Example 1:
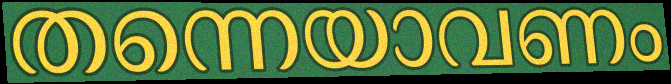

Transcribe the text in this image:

തന്നെയാവണം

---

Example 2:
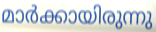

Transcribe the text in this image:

മാർക്കായിരുന്നു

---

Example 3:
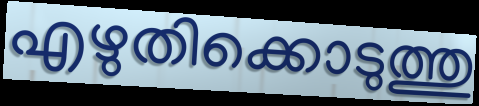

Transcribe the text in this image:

എഴുതിക്കൊടുത്തു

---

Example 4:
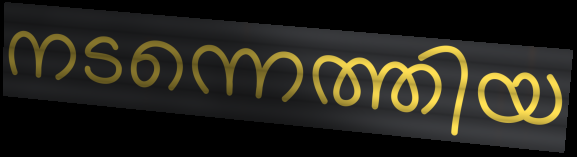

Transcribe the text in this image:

നടന്നെത്തിയ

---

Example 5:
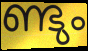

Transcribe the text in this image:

ണ്ടും